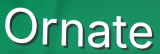
Ornate